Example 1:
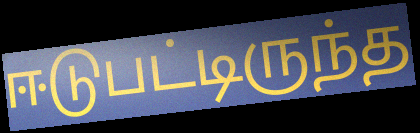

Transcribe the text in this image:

ஈடுபட்டிருந்த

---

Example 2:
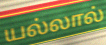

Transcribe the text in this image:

யல்லால்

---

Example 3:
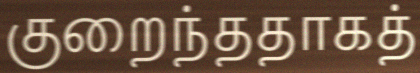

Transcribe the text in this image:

குறைந்ததாகத்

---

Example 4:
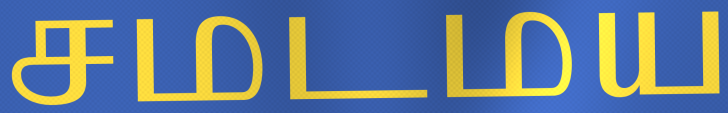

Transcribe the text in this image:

சமடமய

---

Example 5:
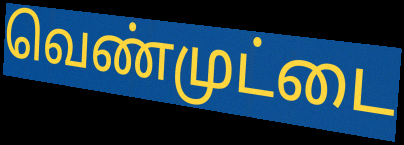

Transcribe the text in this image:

வெண்முட்டை